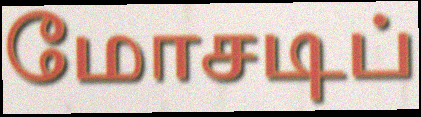
மோசடிப்